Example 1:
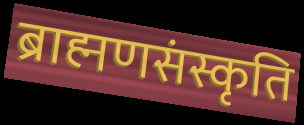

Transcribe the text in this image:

ब्राह्मणसंस्कृति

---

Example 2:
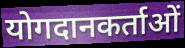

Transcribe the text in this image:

योगदानकर्ताओं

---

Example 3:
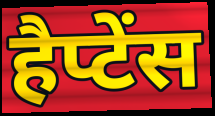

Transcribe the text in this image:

हैप्टेंस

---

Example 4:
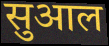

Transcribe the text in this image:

सुआल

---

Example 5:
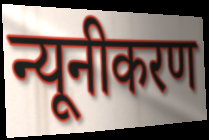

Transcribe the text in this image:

न्यूनीकरण